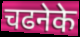
चढनेके